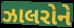
ઝાલરોને